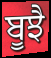
ਬੂਝੈ